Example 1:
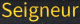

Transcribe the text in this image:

Seigneur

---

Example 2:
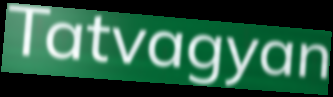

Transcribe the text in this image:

Tatvagyan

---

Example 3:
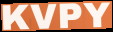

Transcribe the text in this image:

KVPY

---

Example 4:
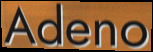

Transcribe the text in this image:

Adeno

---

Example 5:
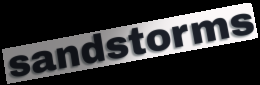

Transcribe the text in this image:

sandstorms